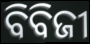
ବିବିଜୀ